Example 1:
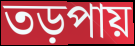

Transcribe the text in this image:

তড়পায়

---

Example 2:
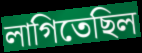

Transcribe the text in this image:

লাগিতেছিল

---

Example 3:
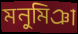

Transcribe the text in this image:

মনুমিঞা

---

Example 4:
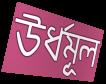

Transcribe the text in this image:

উর্ধমূল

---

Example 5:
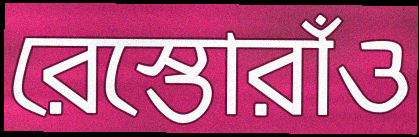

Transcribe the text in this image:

রেস্তোরাঁও